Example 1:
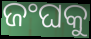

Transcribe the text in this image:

ଜଂଘକୁ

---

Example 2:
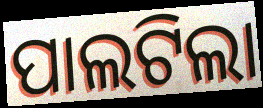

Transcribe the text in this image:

ପାଲଟିଲା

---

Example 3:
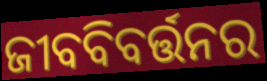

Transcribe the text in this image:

ଜୀବବିବର୍ତ୍ତନର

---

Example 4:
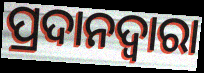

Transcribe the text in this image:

ପ୍ରଦାନଦ୍ୱାରା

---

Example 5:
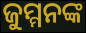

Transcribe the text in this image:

ଜୁମ୍ମନଙ୍କ